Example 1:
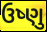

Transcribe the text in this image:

ઉષ્ણુ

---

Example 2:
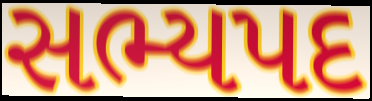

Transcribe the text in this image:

સભ્યપદ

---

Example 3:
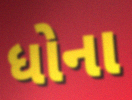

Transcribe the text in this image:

ધોના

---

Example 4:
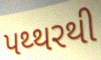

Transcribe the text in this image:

પથ્થરથી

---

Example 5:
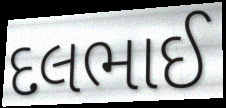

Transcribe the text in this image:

દલભાઈ